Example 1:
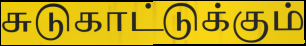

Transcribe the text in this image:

சுடுகாட்டுக்கும்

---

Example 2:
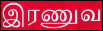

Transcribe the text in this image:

இரணுவ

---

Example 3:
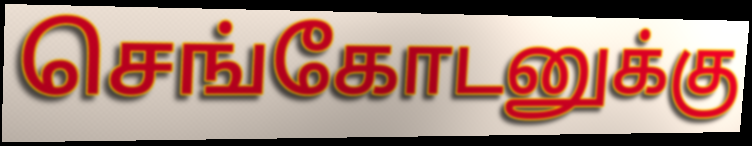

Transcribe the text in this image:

செங்கோடனுக்கு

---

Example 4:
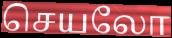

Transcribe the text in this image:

செயலோ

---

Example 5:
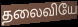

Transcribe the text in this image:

தலைவியே